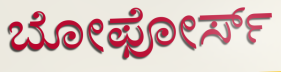
ಬೋಫೋರ್ಸ್